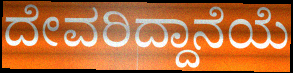
ದೇವರಿದ್ದಾನೆಯೆ